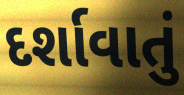
દર્શાવાતું